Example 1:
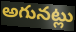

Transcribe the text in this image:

అగునట్లు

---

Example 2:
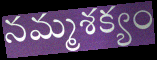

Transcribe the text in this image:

నమ్మశక్యం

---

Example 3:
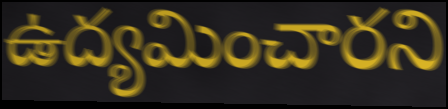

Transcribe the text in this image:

ఉద్యమించారని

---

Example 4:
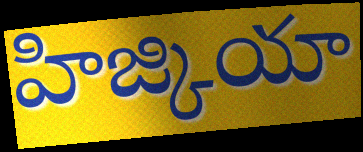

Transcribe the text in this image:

హిజ్కియా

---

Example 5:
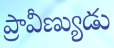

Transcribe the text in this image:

ప్రావీణ్యుడు